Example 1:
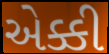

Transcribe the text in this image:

એક્કી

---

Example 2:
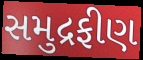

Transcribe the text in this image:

સમુદ્રફીણ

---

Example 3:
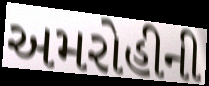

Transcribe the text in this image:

અમરોહીની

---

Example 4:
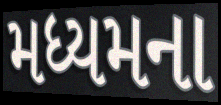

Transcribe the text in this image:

મધ્યમના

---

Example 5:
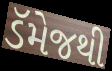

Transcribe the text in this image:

ડૅમેજથી